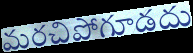
మరచిపోగూడదు